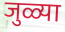
जुळ्या